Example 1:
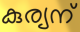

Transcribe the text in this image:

കുര്യന്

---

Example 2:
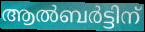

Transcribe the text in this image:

ആൽബർട്ടിന്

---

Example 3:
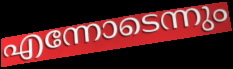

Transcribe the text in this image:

എന്നോടെന്നും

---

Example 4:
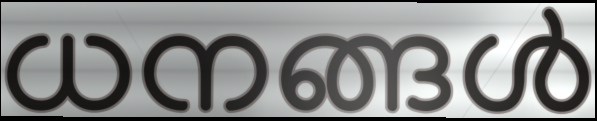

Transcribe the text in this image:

ധനങ്ങൾ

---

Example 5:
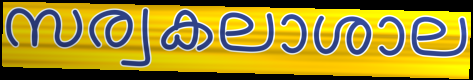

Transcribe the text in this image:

സര്വകലാശാല